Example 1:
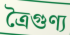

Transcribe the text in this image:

ত্রৈগুণ্য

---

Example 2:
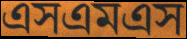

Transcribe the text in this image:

এসএমএস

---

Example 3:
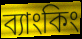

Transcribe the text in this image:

ব্যাংকিং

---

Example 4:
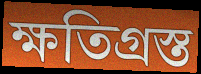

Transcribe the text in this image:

ক্ষতিগ্রস্ত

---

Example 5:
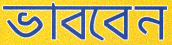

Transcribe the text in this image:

ভাববেন